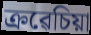
ক্ৰৱেচিয়া